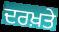
ਦਰਖ਼ਤੇ